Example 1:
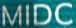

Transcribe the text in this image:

MIDC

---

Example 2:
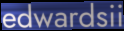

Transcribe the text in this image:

edwardsii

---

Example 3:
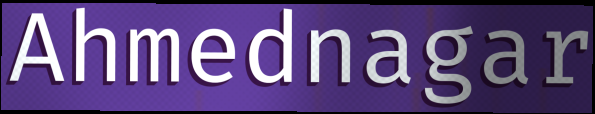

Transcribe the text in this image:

Ahmednagar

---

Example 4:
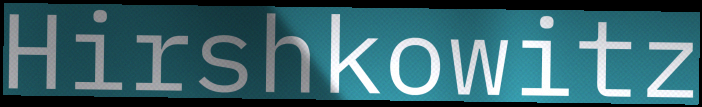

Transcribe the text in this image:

Hirshkowitz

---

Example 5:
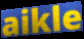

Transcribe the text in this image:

aikle